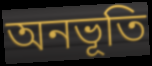
অনভূতি